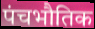
पंचभौतिक